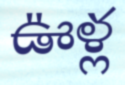
ఊళ్ల